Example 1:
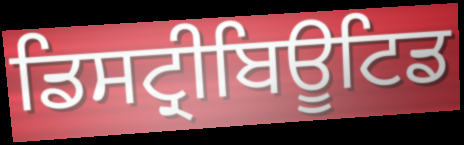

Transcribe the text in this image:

ਡਿਸਟ੍ਰੀਬਿਊਟਿਡ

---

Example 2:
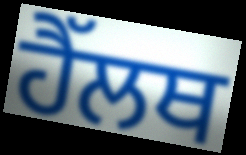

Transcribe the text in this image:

ਹੈੱਲਥ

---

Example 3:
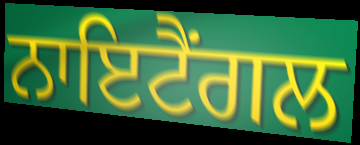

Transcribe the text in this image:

ਨਾਇਟੈਂਗਲ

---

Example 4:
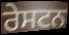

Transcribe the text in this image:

ਰੇਸਟਨ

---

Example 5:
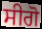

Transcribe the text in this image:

ਸੀਗੋ